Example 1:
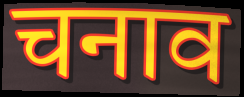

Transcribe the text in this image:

चनाव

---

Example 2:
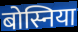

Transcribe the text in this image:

बोस्निया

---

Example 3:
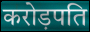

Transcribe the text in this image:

करोड़पति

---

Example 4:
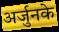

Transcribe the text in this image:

अर्जुनके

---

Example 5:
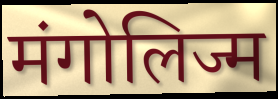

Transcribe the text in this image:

मंगोलिज्म